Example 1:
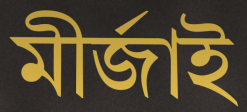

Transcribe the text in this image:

মীর্জাই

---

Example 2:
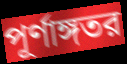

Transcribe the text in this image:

পূর্ণাঙ্গতর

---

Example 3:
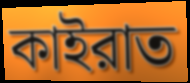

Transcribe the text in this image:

কাইরাত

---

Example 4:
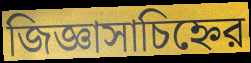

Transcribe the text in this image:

জিজ্ঞাসাচিহ্নের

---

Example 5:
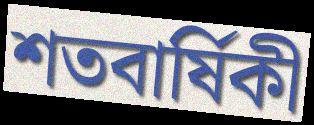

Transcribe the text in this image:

শতবার্ষিকী